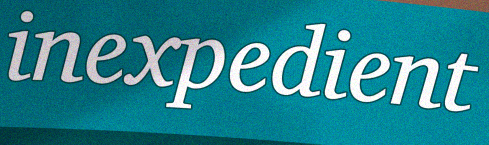
inexpedient